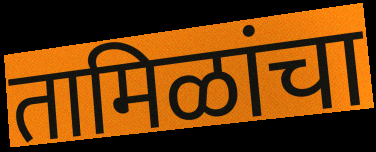
तामिळांचा